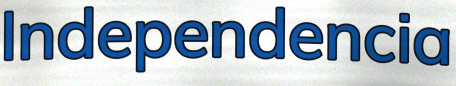
Independencia